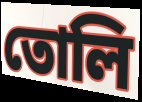
তোলি